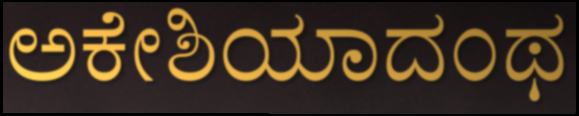
ಅಕೇಶಿಯಾದಂಥ